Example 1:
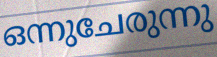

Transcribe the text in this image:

ഒന്നുചേരുന്നു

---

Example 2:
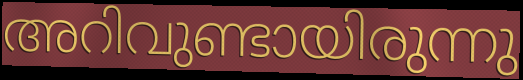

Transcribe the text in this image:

അറിവുണ്ടായിരുന്നു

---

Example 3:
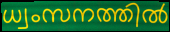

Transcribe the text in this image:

ധ്വംസനത്തിൽ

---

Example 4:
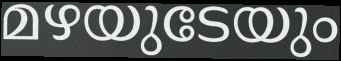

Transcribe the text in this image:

മഴയുടേയും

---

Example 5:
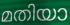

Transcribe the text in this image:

മതിയാ